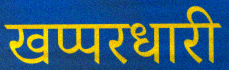
खप्परधारी